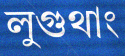
লুগুথাং